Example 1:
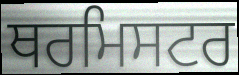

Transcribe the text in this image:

ਥਰਮਿਸਟਰ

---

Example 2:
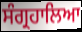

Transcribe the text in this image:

ਸੰਗ੍ਰਹਾਲਿਆ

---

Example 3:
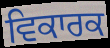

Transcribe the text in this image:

ਵਿਕਾਰਕ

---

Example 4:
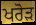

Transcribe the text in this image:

ਖਰੋੜ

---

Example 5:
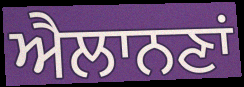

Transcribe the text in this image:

ਐਲਾਨਣਾਂ